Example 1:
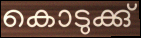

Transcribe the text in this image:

കൊടുക്കു്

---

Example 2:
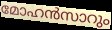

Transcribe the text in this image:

മോഹൻസാറും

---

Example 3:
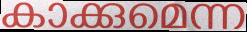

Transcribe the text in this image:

കാക്കുമെന്ന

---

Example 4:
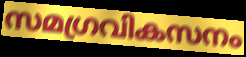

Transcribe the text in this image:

സമഗ്രവികസനം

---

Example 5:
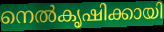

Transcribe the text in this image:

നെൽകൃഷിക്കായി